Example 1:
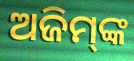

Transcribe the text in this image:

ଅଜିମ୍‌ଙ୍କ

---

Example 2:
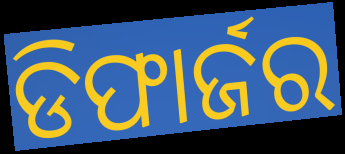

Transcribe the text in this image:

ଡିଫାର୍ଜର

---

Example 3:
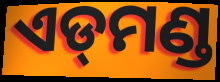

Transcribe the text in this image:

ଏଡ୍‌ମଣ୍ଡ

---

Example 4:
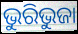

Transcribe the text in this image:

ଭୁରିଭୁଜା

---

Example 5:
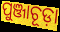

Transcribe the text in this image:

ପୁଞ୍ଜାଚୂଡ଼ା